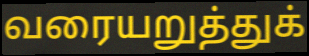
வரையறுத்துக்